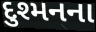
દુશ્મનના